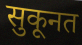
सुकूनत